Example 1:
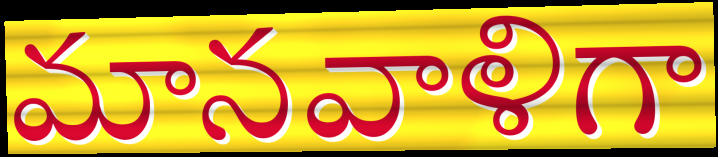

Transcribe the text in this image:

మానవాళిగా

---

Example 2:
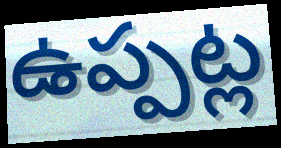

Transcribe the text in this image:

ఉప్పట్ల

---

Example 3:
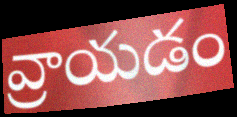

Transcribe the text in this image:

వ్రాయడం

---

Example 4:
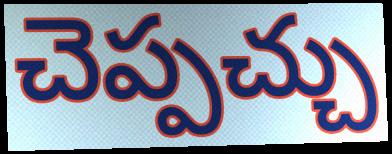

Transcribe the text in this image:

చెప్పచ్చు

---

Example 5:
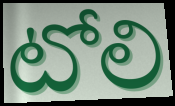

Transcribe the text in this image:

టోలి